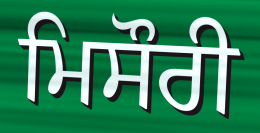
ਮਿਸੌਰੀ